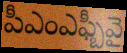
పీఎంఎఫ్బీవై